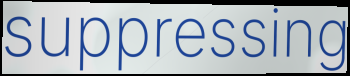
suppressing